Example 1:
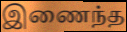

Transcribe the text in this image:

இணைந்த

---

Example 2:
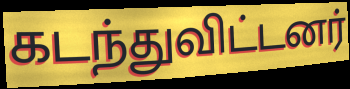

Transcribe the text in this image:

கடந்துவிட்டனர்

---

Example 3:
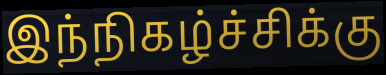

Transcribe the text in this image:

இந்நிகழ்ச்சிக்கு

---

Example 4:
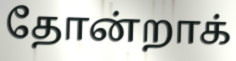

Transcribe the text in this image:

தோன்றாக்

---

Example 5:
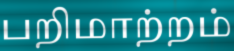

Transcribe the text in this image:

பறிமாற்றம்